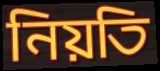
নিয়তি